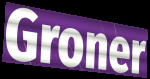
Groner